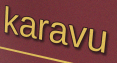
karavu